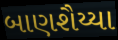
બાણશૈય્યા